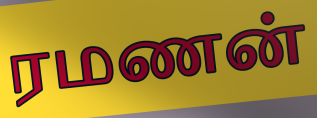
ரமணன்